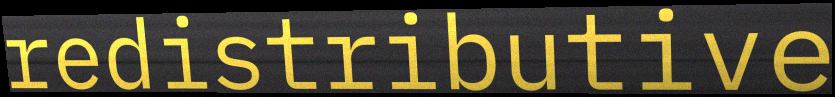
redistributive